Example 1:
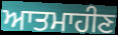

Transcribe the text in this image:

ਆਤਮਾਹੀਣ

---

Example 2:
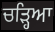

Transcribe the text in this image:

ਚਡ਼੍ਹਿਆ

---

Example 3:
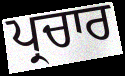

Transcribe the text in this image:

ਪ੍ਰਚਾਰ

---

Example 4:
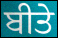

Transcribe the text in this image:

ਬੀਤੇ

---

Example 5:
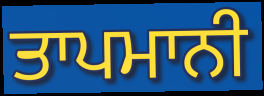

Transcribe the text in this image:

ਤਾਪਮਾਨੀ